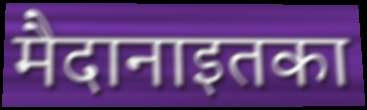
मैदानाइतका